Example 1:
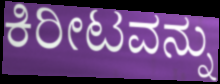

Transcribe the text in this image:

ಕಿರೀಟವನ್ನು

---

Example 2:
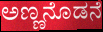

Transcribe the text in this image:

ಅಣ್ಣನೊಡನೆ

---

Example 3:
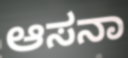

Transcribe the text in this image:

ಆಸನಾ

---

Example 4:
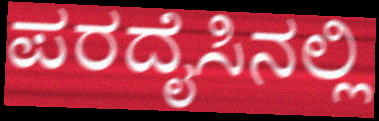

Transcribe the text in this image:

ಪರದೈಸಿನಲ್ಲಿ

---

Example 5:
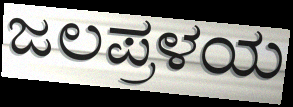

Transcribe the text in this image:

ಜಲಪ್ರಳಯ